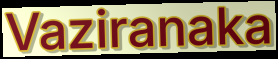
Vaziranaka